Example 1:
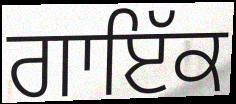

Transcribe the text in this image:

ਗਾਇੱਕ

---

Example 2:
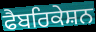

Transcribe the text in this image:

ਫੈਬਰਿਕੇਸ਼ਨ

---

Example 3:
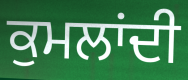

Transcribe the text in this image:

ਕੁਮਲਾਂਦੀ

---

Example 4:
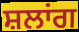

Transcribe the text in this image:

ਸ਼ਲਾਂਗ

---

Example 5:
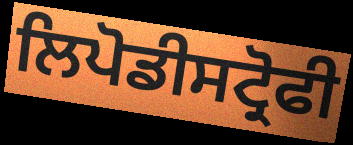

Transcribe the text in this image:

ਲਿਪੋਡੀਸਟ੍ਰੋਫੀ